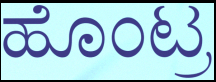
ಹೊಂಟ್ರ